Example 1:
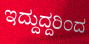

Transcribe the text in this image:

ಇದ್ದುದ್ದರಿಂದ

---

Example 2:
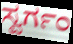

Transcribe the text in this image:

ಸ್ವರ್ಗಂ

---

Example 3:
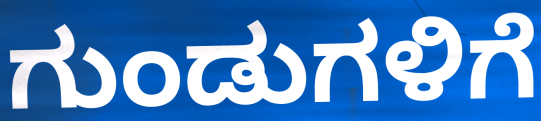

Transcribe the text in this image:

ಗುಂಡುಗಳಿಗೆ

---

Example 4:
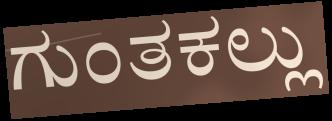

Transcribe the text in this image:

ಗುಂತಕಲ್ಲು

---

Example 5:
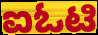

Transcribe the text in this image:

ಐಓಟಿ